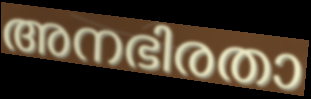
അനഭിരതാ